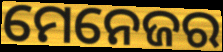
ମେନେଜର